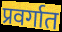
प्रवर्गात